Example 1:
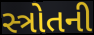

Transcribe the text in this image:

સ્ત્રોતની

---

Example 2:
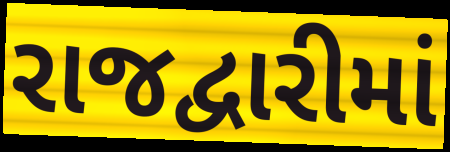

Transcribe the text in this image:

રાજદ્વારીમાં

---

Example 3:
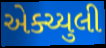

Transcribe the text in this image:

એક્ચ્યુલી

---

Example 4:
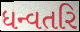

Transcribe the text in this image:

ધન્વતરિ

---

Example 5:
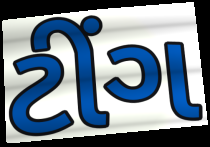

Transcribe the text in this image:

ટીંગ